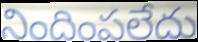
నిందింపలేదు